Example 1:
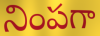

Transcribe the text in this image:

నింపగా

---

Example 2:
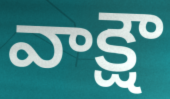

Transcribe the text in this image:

వాక్షౌ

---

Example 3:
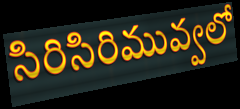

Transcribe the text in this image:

సిరిసిరిమువ్వలో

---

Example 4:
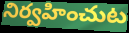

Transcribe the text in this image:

నిర్వహించుట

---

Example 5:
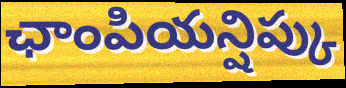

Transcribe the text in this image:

ఛాంపియన్షిప్కు